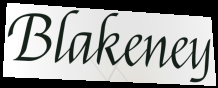
Blakeney